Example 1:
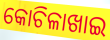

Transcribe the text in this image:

କୋଚିଳାଖାଇ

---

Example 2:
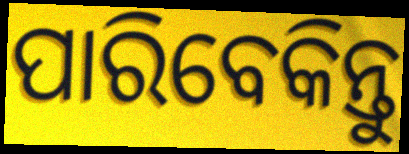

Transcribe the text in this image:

ପାରିବେକିନ୍ତୁ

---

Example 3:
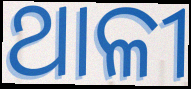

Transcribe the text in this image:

ଥାଳୀ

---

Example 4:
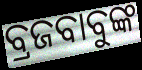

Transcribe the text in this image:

ବ୍ରଜବାବୁଙ୍କ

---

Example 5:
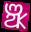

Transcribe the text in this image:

ଞ୍ଝ